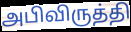
அபிவிருத்தி